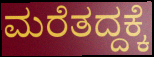
ಮರೆತದ್ದಕ್ಕೆ